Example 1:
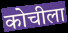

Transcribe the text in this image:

कोचीला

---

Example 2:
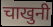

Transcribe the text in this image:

चाखुनी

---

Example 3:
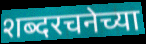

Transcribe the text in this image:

शब्दरचनेच्या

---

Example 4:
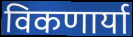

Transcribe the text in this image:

विकणार्या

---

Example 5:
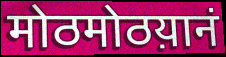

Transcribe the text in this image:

मोठमोठय़ानं